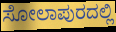
ಸೋಲಾಪುರದಲ್ಲಿ